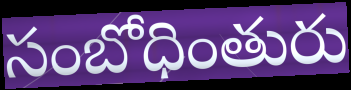
సంబోధింతురు